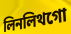
লিনলিথগো